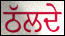
ਠੱਲਦੇ